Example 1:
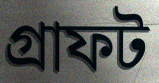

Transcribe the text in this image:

গ্রাফট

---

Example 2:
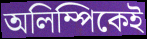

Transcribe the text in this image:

অলিম্পিকেই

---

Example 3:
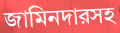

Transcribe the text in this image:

জামিনদারসহ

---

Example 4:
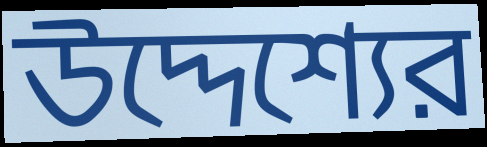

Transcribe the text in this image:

উদ্দেশ্যের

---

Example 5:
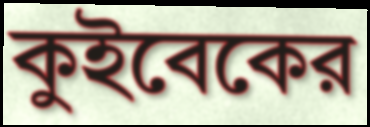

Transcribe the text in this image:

কুইবেকের